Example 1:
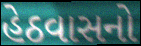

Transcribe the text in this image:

હેઠવાસનો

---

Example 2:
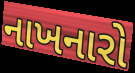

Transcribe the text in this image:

નાખનારો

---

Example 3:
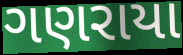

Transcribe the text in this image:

ગણરાયા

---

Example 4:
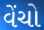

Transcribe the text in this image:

વેંચો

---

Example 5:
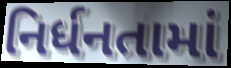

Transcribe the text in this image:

નિર્ધનતામાં